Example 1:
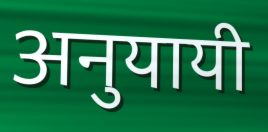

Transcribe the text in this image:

अनुयायी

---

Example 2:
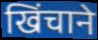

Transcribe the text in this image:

खिंचाने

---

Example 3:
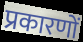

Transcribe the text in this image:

प्रकारणों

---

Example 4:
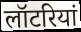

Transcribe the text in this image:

लॉटरियां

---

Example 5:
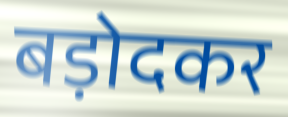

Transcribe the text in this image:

बड़ोदकर